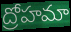
ద్రోహమా